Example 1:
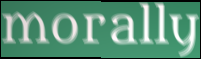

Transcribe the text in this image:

morally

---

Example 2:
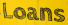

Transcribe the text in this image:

Loans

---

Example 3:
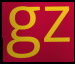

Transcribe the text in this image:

gz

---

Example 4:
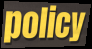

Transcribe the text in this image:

policy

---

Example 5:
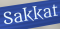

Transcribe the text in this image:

Sakkat